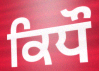
ਕਿਧੌ